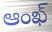
ఆంఖ్